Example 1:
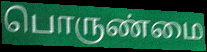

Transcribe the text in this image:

பொருண்மை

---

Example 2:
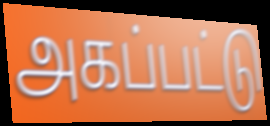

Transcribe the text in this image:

அகப்பட்டு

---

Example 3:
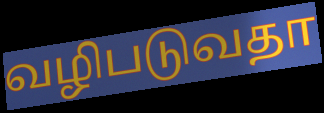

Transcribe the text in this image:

வழிபடுவதா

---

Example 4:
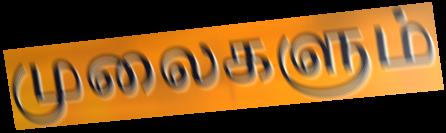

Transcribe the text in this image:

முலைகளும்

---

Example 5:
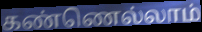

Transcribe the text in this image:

கண்ணெல்லாம்